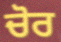
ਚੋਰ